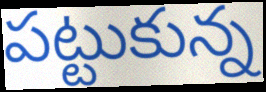
పట్టుకున్న